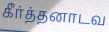
கீர்த்தனாடவ